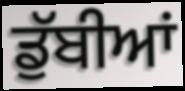
ਡੁੱਬੀਆਂ